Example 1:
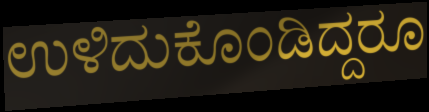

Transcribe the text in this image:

ಉಳಿದುಕೊಂಡಿದ್ದರೂ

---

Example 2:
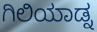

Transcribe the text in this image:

ಗಿಲಿಯಾಡ್ನ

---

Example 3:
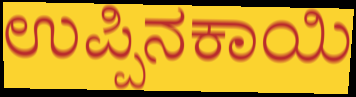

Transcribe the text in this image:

ಉಪ್ಪಿನಕಾಯಿ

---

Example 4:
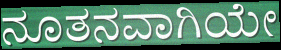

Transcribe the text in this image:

ನೂತನವಾಗಿಯೇ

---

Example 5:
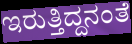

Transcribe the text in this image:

ಇರುತ್ತಿದ್ದನಂತೆ